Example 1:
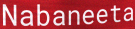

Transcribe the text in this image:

Nabaneeta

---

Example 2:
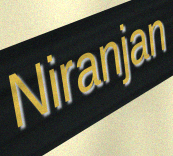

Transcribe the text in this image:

Niranjan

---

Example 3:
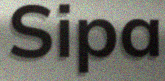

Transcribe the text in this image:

Sipa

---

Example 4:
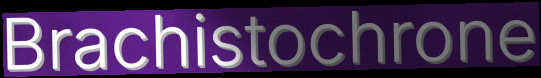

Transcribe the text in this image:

Brachistochrone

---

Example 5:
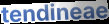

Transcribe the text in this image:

tendineae